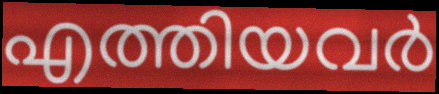
എത്തിയവർ